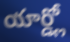
యార్డ్లో